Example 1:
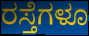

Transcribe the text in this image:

ರಸ್ತೆಗಳೂ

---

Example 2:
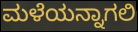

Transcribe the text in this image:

ಮಳೆಯನ್ನಾಗಲಿ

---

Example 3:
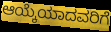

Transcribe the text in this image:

ಆಯ್ಕೆಯಾದವರಿಗೆ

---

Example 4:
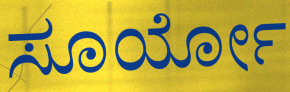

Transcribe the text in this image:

ಸೂರ್ಯೋ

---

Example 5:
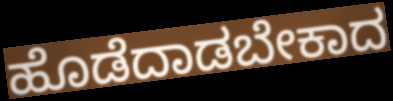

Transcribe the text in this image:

ಹೊಡೆದಾಡಬೇಕಾದ